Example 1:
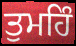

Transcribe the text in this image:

ਤੁਮਹਿੰ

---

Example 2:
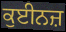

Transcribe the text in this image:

ਕੁਈਨਜ਼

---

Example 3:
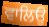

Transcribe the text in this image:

ਵਾਲਿਉ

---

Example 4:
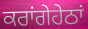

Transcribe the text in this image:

ਕਰਾਂਗੇਹੇਠਾਂ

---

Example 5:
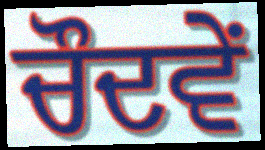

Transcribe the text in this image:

ਚੌਦਵੇਂ